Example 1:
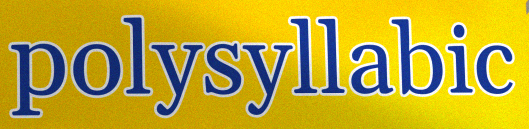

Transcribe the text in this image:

polysyllabic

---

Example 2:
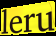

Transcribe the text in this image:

leru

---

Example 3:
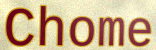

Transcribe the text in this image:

Chome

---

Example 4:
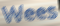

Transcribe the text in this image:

Wees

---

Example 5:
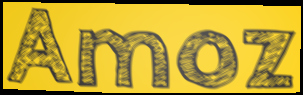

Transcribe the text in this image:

Amoz